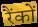
रैंकों